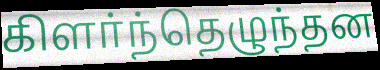
கிளர்ந்தெழுந்தன